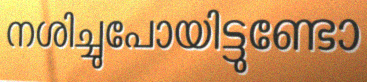
നശിച്ചുപോയിട്ടുണ്ടോ